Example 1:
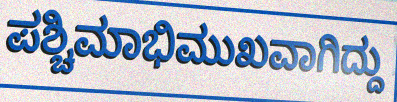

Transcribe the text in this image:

ಪಶ್ಚಿಮಾಭಿಮುಖವಾಗಿದ್ದು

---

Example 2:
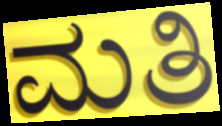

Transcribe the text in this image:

ಮತಿ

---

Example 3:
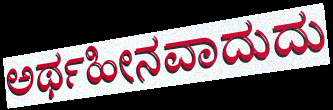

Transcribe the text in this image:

ಅರ್ಥಹೀನವಾದುದು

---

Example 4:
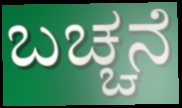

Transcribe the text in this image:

ಬಚ್ಚನೆ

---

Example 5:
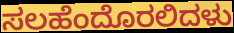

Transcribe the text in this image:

ಸಲಹೆಂದೊರಲಿದಳು